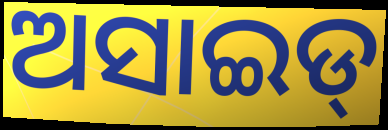
ଅସାଇଡ୍